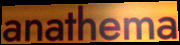
anathema